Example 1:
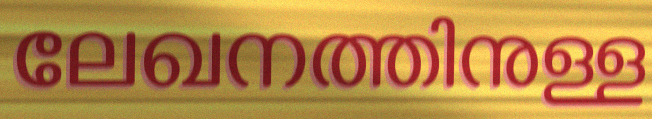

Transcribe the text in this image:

ലേഖനത്തിനുള്ള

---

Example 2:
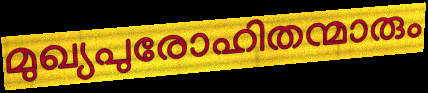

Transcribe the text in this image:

മുഖ്യപുരോഹിതന്മാരും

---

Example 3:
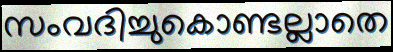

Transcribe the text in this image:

സംവദിച്ചുകൊണ്ടല്ലാതെ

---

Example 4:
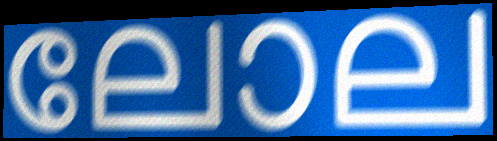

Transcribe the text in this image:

ലോല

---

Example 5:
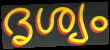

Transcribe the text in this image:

ദൃശ്യം